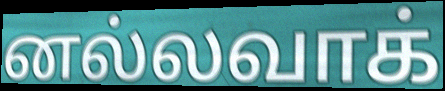
னல்லவாக்